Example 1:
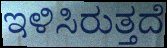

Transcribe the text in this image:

ಇಳಿಸಿರುತ್ತದೆ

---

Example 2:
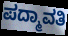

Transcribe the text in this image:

ಪದ್ಮಾವತಿ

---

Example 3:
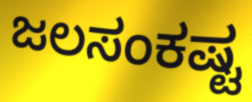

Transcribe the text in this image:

ಜಲಸಂಕಷ್ಟ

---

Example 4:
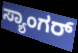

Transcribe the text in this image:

ಸ್ಯಾಂಗರ್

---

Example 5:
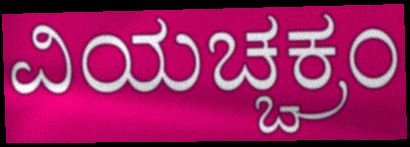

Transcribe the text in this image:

ವಿಯಚ್ಚಕ್ರಂ